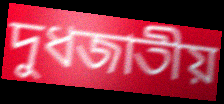
দুধজাতীয়